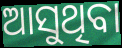
ଆସୁଥିବା